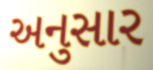
અનુસાર